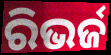
ରିଭର୍ଜ